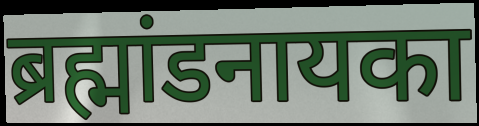
ब्रह्मांडनायका